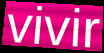
vivir